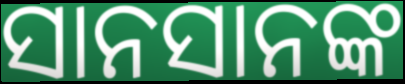
ସାନସାନଙ୍କ